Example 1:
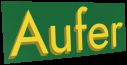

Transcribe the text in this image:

Aufer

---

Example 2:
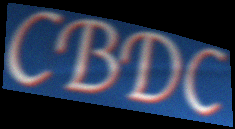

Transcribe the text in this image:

CBDC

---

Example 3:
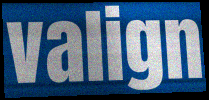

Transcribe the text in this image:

valign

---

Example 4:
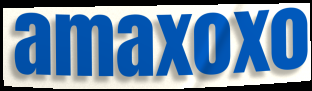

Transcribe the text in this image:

amaxoxo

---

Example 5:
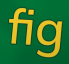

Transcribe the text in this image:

fig